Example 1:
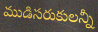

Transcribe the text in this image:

ముడిసరుకులన్నీ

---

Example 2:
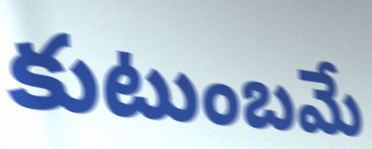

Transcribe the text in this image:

కుటుంబమే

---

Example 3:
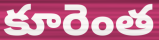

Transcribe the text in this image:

కూరెంత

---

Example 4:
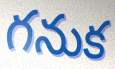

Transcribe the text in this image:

గనుక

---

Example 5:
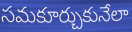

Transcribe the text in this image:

సమకూర్చుకునేలా